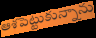
ఆశపెట్టుకున్నాను